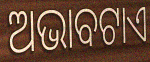
ଅଭାବଟାଏ